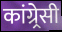
कांग्र्रेसी